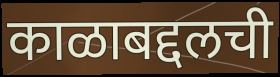
काळाबद्दलची